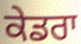
ਕੇਡਰਾ